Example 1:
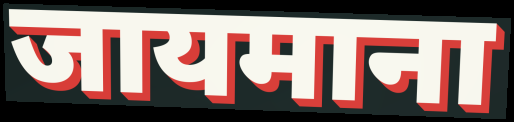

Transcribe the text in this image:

जायमाना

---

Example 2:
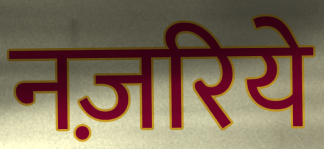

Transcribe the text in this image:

नज़रिये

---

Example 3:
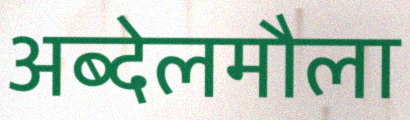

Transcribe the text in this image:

अब्देलमौला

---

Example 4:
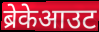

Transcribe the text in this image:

ब्रेकेआउट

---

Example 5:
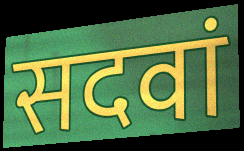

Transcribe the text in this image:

सदवां